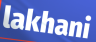
lakhani